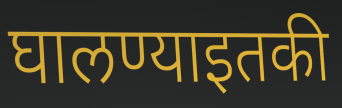
घालण्याइतकी